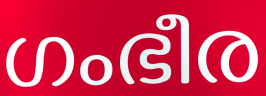
ഗംഭീര